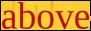
above